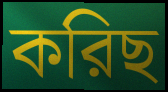
করিছ